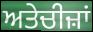
ਅਤੇਚੀਜ਼ਾਂ